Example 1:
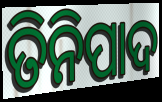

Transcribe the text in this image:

ତିନିପାଦ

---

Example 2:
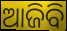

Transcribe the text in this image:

ଆଜିବି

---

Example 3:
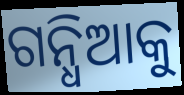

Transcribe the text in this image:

ଗନ୍ଧିଆକୁ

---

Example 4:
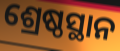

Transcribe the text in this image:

ଶ୍ରେଷ୍ଠସ୍ଥାନ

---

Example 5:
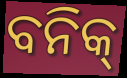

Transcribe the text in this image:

ବନିକ୍